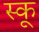
स्कू